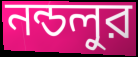
নন্ডলুর